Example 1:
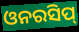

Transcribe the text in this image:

ଓନରସିପ୍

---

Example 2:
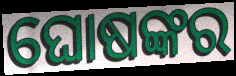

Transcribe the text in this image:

ଘୋଷଙ୍କର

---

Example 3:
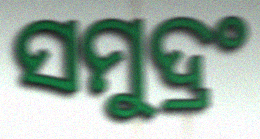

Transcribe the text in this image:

ସମୁଦ୍ରଂ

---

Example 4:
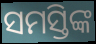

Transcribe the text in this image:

ସମସ୍ତିଙ୍କ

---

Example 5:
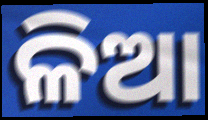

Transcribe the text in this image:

ଳିଆ